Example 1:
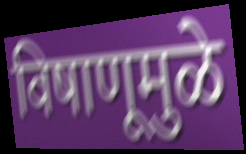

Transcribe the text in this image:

विषाणूमुळे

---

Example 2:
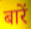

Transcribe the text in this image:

बारें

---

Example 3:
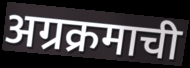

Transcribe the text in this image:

अग्रक्रमाची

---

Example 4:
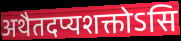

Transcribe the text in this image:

अथैतदप्यशक्तोऽसि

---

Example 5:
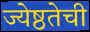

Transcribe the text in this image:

ज्येष्ठतेची